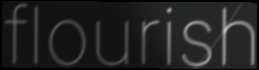
flourish